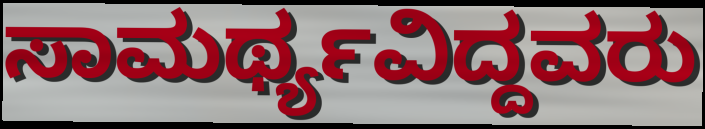
ಸಾಮರ್ಥ್ಯವಿದ್ದವರು